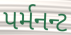
પર્મનન્ટ